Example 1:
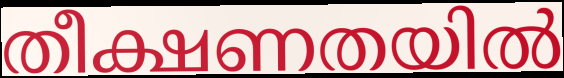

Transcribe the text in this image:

തീക്ഷണതയിൽ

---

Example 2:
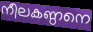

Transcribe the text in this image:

നീലകണ്ഠനെ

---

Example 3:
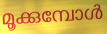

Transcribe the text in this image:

മൂക്കുമ്പോൾ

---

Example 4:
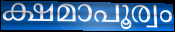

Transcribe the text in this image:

ക്ഷമാപൂര്വം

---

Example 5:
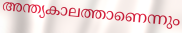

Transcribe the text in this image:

അന്ത്യകാലത്താണെന്നും